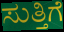
ಸುತ್ತಿಗೆ